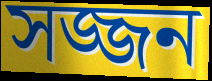
সজ্জন